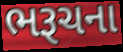
ભરૂચના